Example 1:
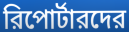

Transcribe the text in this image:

রিপোর্টারদের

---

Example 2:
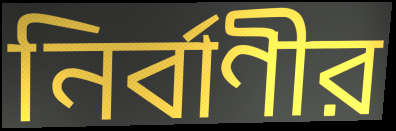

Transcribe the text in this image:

নির্বাণীর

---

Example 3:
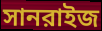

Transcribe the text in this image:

সানরাইজ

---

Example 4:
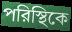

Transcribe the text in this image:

পরিস্থিকে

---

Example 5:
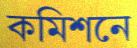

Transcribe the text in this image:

কমিশনে